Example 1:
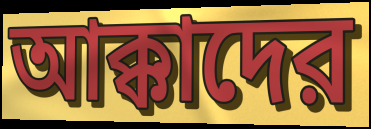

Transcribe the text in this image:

আক্কাদের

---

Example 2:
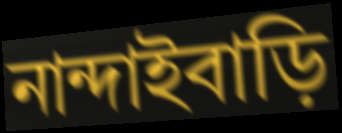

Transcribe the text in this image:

নান্দাইবাড়ি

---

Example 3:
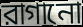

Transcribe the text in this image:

রাগানো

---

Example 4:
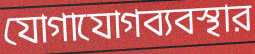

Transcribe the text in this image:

যোগাযোগব্যবস্থার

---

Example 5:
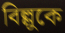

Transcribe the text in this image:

বিল্লুকে